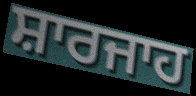
ਸ਼ਾਰਜਾਹ